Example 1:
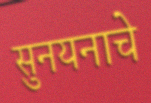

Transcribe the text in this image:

सुनयनाचे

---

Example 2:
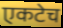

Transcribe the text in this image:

एकटेच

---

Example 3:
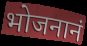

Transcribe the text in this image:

भोजनानं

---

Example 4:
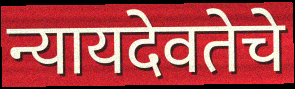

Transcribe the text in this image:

न्यायदेवतेचे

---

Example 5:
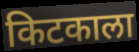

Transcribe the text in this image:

किटकाला